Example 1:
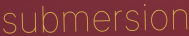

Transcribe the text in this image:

submersion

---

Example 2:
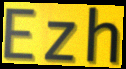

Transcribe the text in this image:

Ezh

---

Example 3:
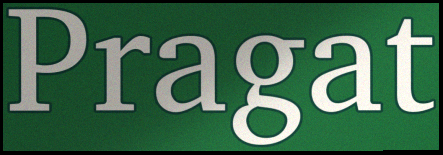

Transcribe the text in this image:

Pragat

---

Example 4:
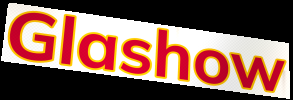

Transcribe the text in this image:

Glashow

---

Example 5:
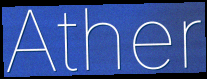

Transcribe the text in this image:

Ather